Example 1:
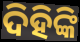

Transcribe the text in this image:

ଦିହିଙ୍କି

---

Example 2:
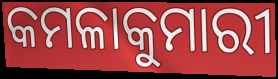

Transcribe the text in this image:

କମଳାକୁମାରୀ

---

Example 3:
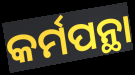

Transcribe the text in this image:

କର୍ମପନ୍ଥା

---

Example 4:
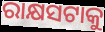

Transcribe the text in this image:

ରାକ୍ଷସଟାକୁ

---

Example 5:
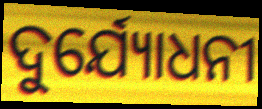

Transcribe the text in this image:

ଦୁର୍ଯ୍ୟୋଧନୀ